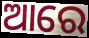
ଆରେ